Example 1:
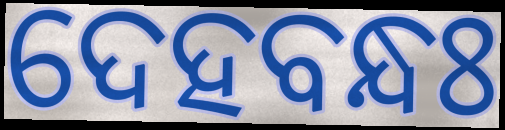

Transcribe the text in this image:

ଦେହବନ୍ଧଃ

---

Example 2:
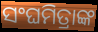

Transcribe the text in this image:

ସଂଘମିତ୍ରାଙ୍କ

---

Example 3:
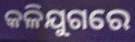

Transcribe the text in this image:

କଳିଯୁଗରେ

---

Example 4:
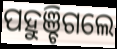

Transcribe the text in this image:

ପହୁଞ୍ଚିଗଲେ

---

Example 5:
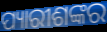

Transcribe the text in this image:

ପ୍ୟାରୀଶଙ୍କର